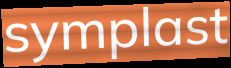
symplast